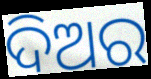
ଦିଅର